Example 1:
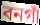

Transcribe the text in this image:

বনগাঁ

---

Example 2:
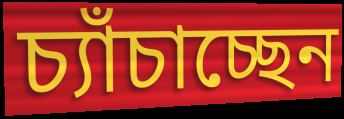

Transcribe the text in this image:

চ্যাঁচাচ্ছেন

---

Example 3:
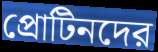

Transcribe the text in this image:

প্রোটিনদের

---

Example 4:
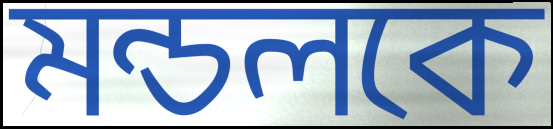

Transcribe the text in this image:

মন্ডলকে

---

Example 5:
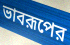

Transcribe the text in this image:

ভাবরূপের